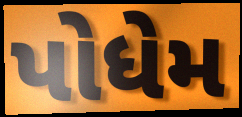
પોધેમ